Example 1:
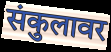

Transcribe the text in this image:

संकुलावर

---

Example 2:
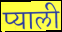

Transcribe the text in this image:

प्याली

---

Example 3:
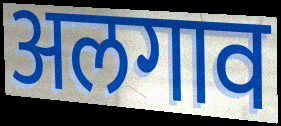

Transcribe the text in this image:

अलगाव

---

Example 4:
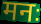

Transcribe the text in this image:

मनः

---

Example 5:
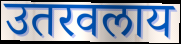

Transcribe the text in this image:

उतरवलाय